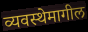
व्यवस्थेमागील